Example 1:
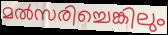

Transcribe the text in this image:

മൽസരിച്ചെങ്കിലും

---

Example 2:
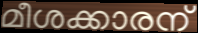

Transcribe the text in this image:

മീശക്കാരന്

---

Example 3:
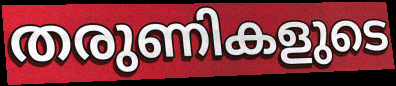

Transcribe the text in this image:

തരുണികളുടെ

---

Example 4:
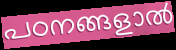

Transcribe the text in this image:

പഠനങ്ങളാൽ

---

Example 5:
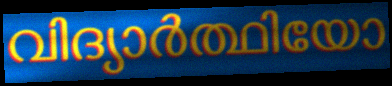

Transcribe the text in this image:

വിദ്യാർത്ഥിയോ